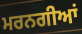
ਮਰਨਗੀਆਂ